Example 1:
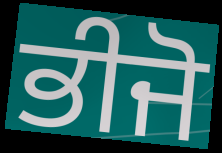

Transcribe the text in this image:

ਭੀਜੋ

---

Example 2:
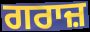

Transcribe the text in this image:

ਗਰਾਜ਼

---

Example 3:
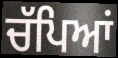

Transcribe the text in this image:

ਚੱਪਿਆਂ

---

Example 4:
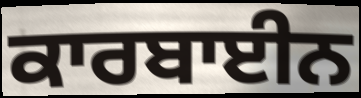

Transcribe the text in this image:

ਕਾਰਬਾਈਨ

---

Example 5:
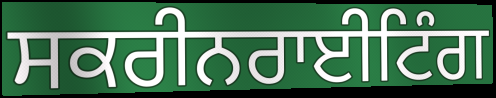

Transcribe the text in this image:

ਸਕਰੀਨਰਾਈਟਿੰਗ